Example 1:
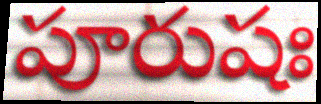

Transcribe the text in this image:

పూరుషః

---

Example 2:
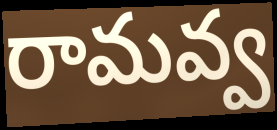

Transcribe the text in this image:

రామవ్వ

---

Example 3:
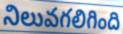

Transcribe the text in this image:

నిలువగలిగింది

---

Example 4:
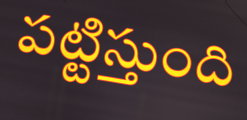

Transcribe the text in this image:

పట్టిస్తుంది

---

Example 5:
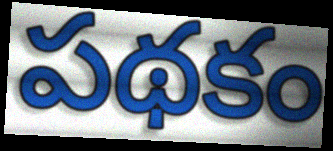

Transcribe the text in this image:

పథకం